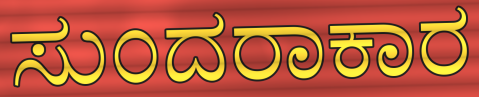
ಸುಂದರಾಕಾರ